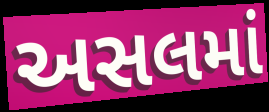
અસલમાં